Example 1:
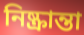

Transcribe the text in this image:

নিষ্ক্রান্তা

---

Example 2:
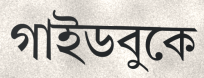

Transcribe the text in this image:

গাইডবুকে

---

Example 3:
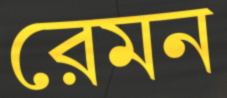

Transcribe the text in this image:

রেমন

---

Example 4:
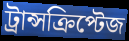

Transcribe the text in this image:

ট্রান্সক্রিপ্টেজ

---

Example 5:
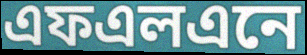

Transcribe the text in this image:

এফএলএনে